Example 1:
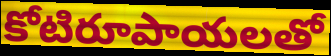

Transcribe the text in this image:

కోటిరూపాయలతో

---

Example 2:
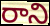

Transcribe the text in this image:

రాని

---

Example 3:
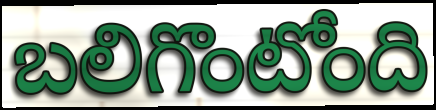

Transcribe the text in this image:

బలిగొంటోంది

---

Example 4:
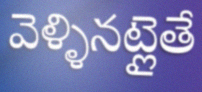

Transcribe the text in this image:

వెళ్ళినట్లైతే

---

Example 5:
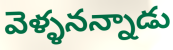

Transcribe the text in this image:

వెళ్ళనన్నాడు